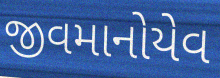
જીવમાનોયેવ